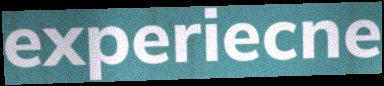
experiecne